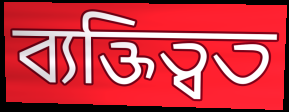
ব্যক্তিত্বত